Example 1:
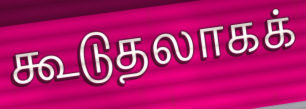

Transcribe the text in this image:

கூடுதலாகக்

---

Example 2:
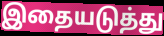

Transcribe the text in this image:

இதையடுத்து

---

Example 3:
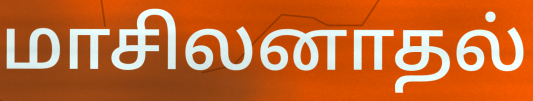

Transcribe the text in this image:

மாசிலனாதல்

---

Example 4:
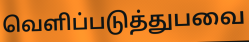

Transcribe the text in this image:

வெளிப்படுத்துபவை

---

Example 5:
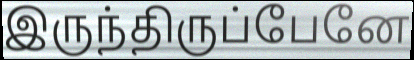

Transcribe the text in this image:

இருந்திருப்பேனே